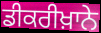
ਡੀਕਰੀਖ਼ਾਨੇ